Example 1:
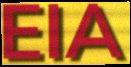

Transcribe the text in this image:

EIA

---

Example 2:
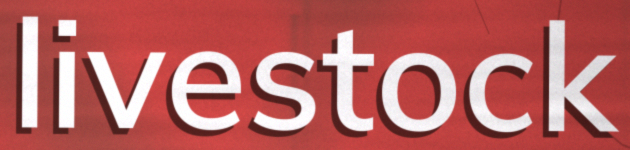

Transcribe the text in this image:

livestock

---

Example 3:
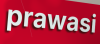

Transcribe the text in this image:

prawasi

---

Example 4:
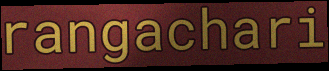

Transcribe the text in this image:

rangachari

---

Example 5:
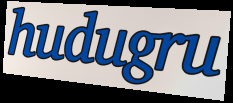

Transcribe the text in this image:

hudugru